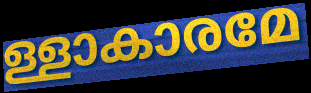
ള്ളാകാരമേ